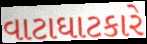
વાટાઘાટકારે